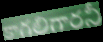
కాగలిగారనీ